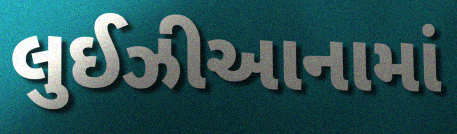
લુઈઝીઆનામાં